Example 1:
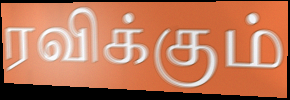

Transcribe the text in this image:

ரவிக்கும்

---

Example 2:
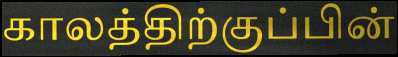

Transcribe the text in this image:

காலத்திற்குப்பின்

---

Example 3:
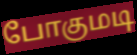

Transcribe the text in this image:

போகுமடி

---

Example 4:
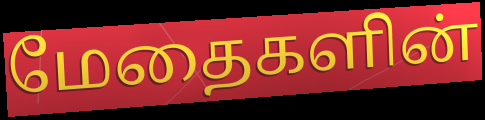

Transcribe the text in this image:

மேதைகளின்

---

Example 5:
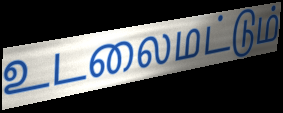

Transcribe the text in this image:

உடலைமட்டும்